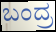
ಬಂದ್ರ